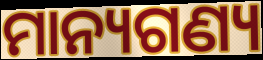
ମାନ୍ୟଗଣ୍ୟ